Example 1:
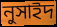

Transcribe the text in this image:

নুসাইদ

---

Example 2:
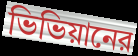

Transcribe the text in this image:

ভিভিয়ানের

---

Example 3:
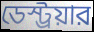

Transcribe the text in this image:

ডেস্ট্রয়ার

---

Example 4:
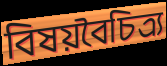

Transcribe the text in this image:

বিষয়বৈচিত্র্য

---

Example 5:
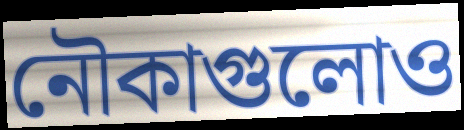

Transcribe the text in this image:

নৌকাগুলোও